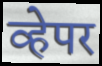
व्हेपर